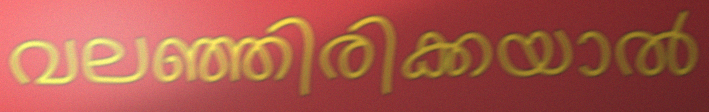
വലഞ്ഞിരിക്കയാൽ